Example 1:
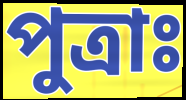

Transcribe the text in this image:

পুত্রাঃ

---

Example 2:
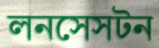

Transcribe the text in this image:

লনসেসটন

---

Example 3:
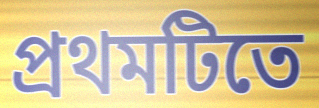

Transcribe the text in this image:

প্রথমটিতে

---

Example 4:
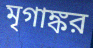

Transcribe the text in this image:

মৃগাঙ্কর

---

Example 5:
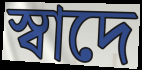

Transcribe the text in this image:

স্বাদে